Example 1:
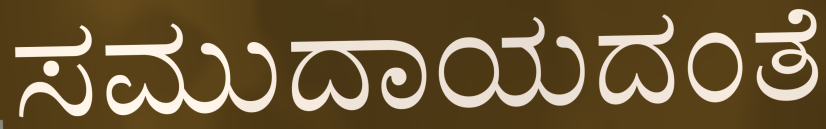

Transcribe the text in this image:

ಸಮುದಾಯದಂತೆ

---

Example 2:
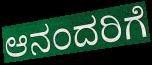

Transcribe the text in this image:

ಆನಂದರಿಗೆ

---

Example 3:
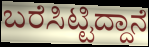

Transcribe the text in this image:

ಬರೆಸಿಟ್ಟಿದ್ದಾನೆ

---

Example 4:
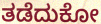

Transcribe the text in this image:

ತಡೆದುಕೋ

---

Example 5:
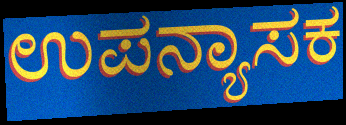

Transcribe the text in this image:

ಉಪನ್ಯಾಸಕ